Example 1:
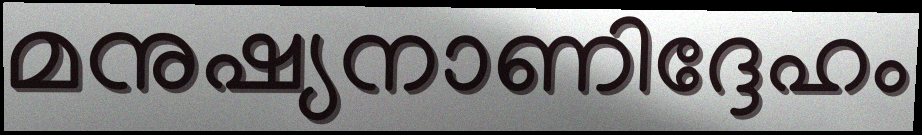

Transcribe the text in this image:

മനുഷ്യനാണിദ്ദേഹം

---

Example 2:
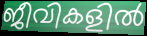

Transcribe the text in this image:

ജീവികളിൽ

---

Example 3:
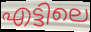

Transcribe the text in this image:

എട്ടിലെ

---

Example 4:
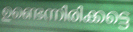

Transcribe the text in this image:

ഉണ്ടെന്നിരിക്കട്ടെ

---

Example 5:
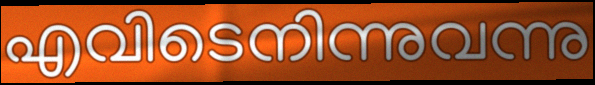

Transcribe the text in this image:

എവിടെനിന്നുവന്നു